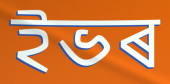
ইভৰ